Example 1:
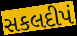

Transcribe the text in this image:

સકલદીપં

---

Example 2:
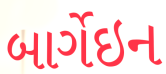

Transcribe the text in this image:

બાર્ગેઇન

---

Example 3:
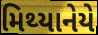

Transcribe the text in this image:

મિથ્યાનેયે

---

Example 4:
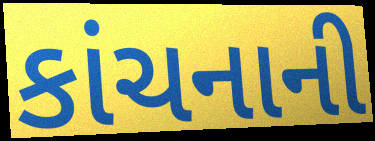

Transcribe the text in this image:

કાંચનાની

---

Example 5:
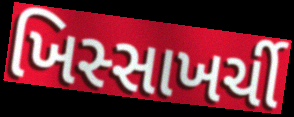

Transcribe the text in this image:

ખિસ્સાખર્ચી